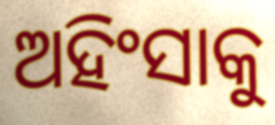
ଅହିଂସାକୁ